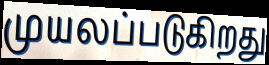
முயலப்படுகிறது